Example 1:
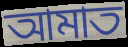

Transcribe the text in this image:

আমাত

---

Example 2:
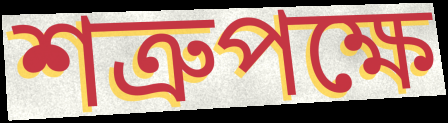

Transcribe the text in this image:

শত্রুপক্ষে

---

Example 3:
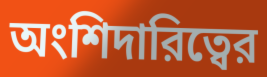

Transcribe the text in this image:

অংশিদারিত্বের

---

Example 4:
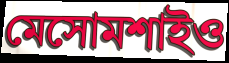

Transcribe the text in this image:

মেসোমশাইও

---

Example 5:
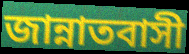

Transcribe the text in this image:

জান্নাতবাসী